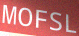
MOFSL